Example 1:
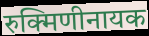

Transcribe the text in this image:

रुक्मिणीनायक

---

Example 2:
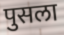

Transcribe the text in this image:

पुसला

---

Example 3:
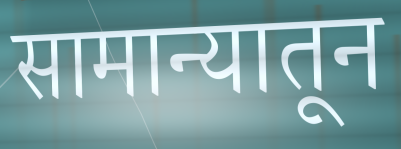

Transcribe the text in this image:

सामान्यातून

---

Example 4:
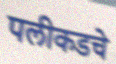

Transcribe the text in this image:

पलीकडचे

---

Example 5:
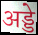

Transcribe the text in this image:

अड्डे